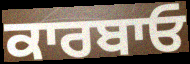
ਕਾਰਬਾਓ